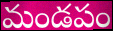
మండపం